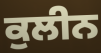
ਕੁਲੀਨ